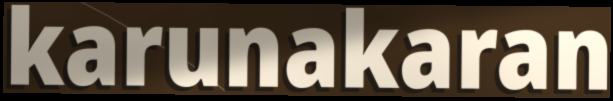
karunakaran